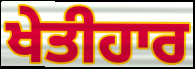
ਖੇਤੀਹਾਰ